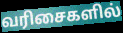
வரிசைகளில்